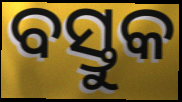
ବସ୍ତୁକ